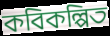
কবিকল্পিত